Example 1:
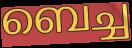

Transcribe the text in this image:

ബെച്ച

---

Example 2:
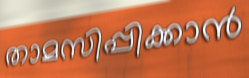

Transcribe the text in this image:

താമസിപ്പിക്കാൻ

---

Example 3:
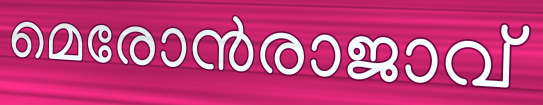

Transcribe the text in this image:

മെരോൻരാജാവ്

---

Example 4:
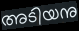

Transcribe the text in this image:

അടിയനു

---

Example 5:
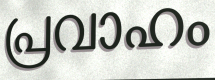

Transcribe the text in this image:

പ്രവാഹം